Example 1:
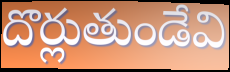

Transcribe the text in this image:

దొర్లుతుండేవి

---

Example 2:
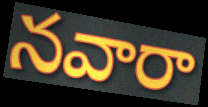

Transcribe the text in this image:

నవారా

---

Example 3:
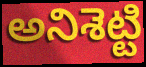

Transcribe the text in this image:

అనిశెట్టి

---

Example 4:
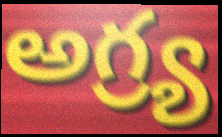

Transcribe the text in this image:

అగ్ర్య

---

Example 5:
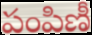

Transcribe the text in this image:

పంపిణీ